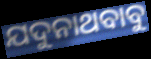
ଯଦୁନାଥବାବୁ